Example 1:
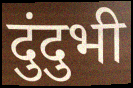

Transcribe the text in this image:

दुंदुभी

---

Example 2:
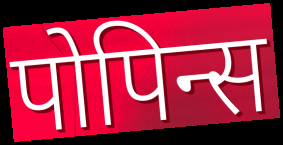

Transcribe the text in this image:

पोपिन्स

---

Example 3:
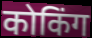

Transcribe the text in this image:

कोकिंग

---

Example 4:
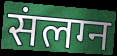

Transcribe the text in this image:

संलग्‍न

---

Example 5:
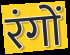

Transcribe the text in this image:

रंगों